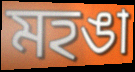
মহঙা